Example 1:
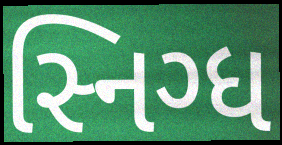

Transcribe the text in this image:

સ્નિગ્ધ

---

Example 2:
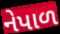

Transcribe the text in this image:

નેપાળ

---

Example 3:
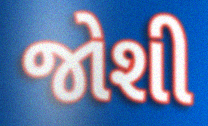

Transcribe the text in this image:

જોશી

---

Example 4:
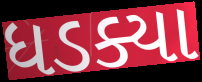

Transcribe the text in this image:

ધડક્યા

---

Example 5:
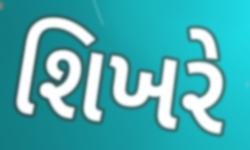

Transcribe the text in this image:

શિખરે